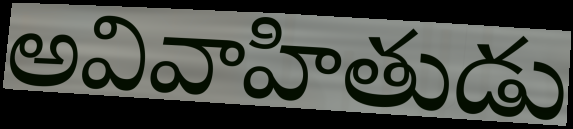
అవివాహితుడు